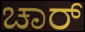
ಚಾರ್